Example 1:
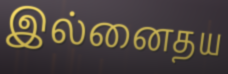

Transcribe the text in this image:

இல்னைதய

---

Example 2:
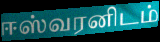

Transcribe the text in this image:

ஈஸ்வரனிடம்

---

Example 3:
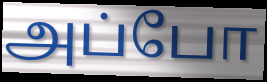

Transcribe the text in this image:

அப்போ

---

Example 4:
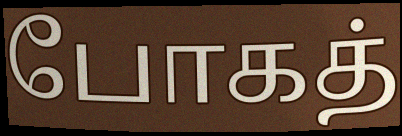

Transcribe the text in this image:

போகத்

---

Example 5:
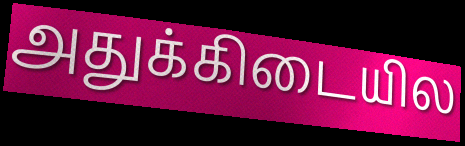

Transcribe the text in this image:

அதுக்கிடையில